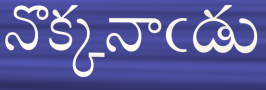
నొక్కనాఁడు